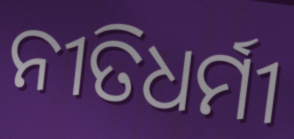
ନୀତିଧର୍ମୀ